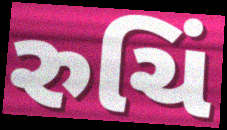
રુચિં